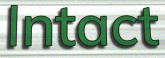
Intact